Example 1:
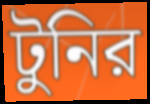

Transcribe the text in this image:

টুনির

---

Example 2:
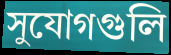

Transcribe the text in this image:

সুযোগগুলি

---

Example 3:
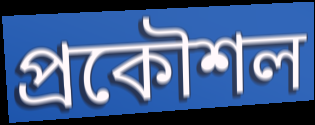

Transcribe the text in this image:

প্রকৌশল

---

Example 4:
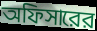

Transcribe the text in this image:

অফিসারের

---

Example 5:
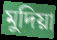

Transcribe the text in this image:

মুদিয়া